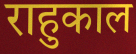
राहुकाल